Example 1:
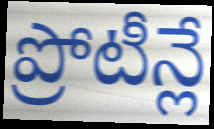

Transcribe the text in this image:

ప్రోటీన్లే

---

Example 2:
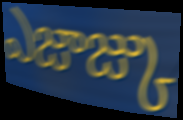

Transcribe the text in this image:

ఎజాజ్కు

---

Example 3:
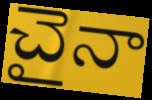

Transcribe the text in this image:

చైనా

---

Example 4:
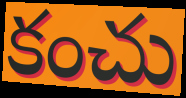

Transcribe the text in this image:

కంచు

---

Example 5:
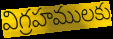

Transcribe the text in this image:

విగ్రహములకు